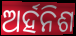
ଅର୍ହନିଶ